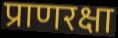
प्राणरक्षा